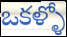
ఒకళ్ళో